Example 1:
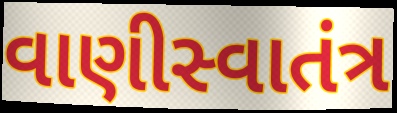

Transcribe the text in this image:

વાણીસ્વાતંત્ર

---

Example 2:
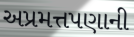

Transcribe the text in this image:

અપ્રમત્તપણાની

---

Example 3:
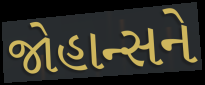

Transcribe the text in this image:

જોહાન્સને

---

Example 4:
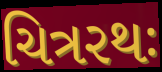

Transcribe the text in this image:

ચિત્રરથઃ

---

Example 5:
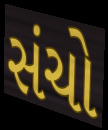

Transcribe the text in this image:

સંચો